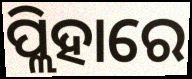
ପ୍ଲିହାରେ